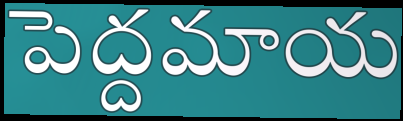
పెద్దమాయ